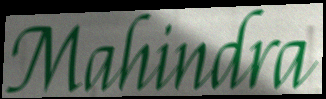
Mahindra